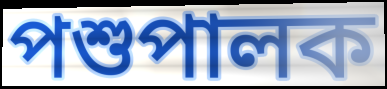
পশুপালক